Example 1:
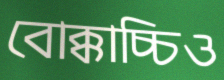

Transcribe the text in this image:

বোক্কাচ্চিও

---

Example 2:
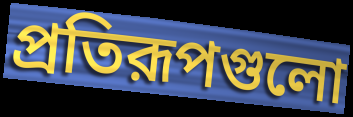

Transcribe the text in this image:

প্রতিরূপগুলো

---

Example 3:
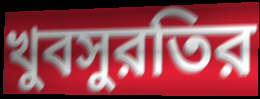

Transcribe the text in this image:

খুবসুরতির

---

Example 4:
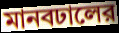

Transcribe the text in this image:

মানবঢালের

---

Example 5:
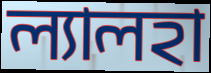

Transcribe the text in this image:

ল্যালহা